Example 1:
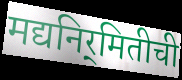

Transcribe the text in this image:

मद्यनिर्मितीची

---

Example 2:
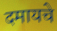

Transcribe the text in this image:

दमायचे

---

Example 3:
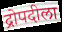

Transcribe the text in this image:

द्रोपदीला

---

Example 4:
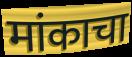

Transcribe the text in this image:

मांकाचा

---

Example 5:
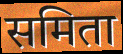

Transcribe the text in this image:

समिता